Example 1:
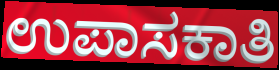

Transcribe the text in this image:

ಉಪಾಸಕಾತಿ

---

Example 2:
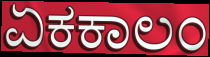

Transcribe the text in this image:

ಏಕಕಾಲಂ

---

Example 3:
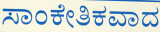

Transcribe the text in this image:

ಸಾಂಕೇತಿಕವಾದ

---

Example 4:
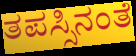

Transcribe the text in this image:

ತಪಸ್ಸಿನಂತೆ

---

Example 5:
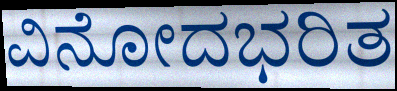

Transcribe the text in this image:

ವಿನೋದಭರಿತ